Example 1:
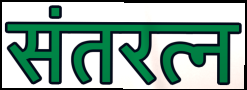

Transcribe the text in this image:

संतरत्न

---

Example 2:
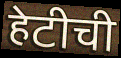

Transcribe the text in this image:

हेटीची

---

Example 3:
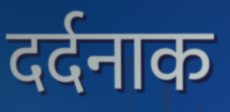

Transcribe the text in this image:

दर्दनाक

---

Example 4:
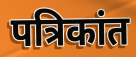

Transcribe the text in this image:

पत्रिकांत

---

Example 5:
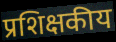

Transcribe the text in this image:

प्रशिक्षकीय